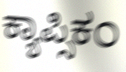
ಕ್ಯಾಪ್ಸಿಕಂ